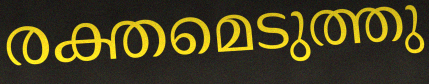
രക്തമെടുത്തു